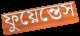
ফুয়েন্তেস